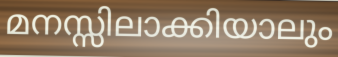
മനസ്സിലാക്കിയാലും